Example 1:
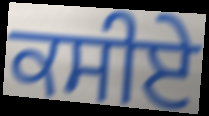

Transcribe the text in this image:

ਕਸੀਏ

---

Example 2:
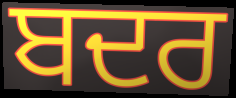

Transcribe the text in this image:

ਬਦਰ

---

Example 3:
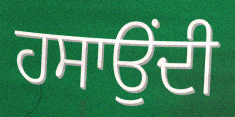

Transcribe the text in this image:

ਹਸਾਉਂਦੀ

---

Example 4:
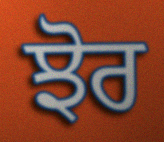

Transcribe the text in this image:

ਝੋਰ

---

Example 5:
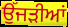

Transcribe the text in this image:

ਉੱਜੜੀਆਂ